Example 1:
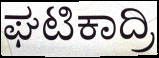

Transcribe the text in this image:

ಘಟಿಕಾದ್ರಿ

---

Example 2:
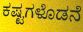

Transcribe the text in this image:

ಕಷ್ಟಗಳೊಡನೆ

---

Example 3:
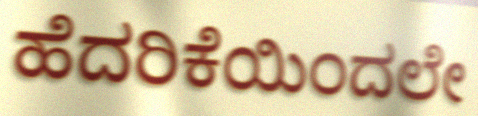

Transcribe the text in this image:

ಹೆದರಿಕೆಯಿಂದಲೇ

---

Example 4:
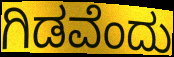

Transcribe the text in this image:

ಗಿಡವೆಂದು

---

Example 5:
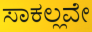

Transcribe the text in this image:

ಸಾಕಲ್ಲವೇ